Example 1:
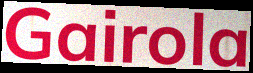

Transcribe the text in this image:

Gairola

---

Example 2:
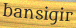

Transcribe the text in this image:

bansigir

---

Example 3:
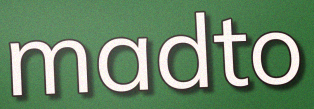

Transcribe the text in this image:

madto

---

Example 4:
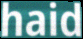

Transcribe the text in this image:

haid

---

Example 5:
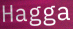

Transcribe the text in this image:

Hagga